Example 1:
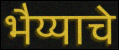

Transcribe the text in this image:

भैय्याचे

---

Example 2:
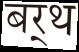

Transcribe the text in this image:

बर्थ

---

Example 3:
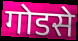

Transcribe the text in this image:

गोडसे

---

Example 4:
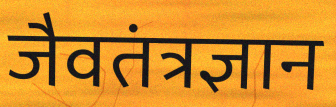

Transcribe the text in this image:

जैवतंत्रज्ञान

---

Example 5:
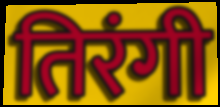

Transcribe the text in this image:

तिरंगी